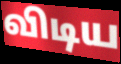
விடிய